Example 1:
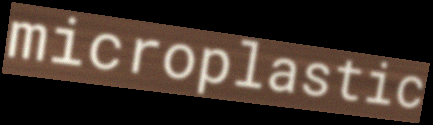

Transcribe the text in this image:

microplastic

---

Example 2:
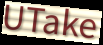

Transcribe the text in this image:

UTake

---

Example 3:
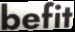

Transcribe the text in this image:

befit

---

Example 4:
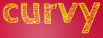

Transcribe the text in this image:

curvy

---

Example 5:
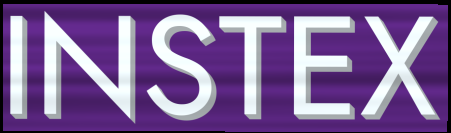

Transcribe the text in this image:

INSTEX